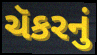
ચૅકરનું